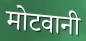
मोटवानी